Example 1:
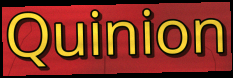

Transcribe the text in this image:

Quinion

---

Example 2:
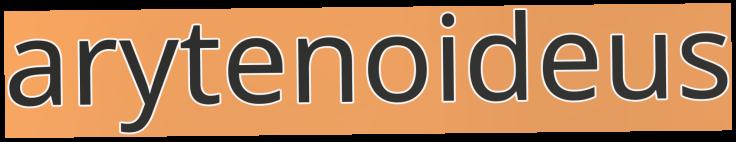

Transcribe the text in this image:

arytenoideus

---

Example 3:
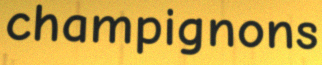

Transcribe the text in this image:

champignons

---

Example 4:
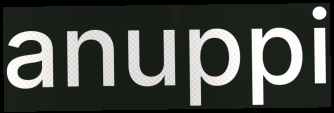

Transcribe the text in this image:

anuppi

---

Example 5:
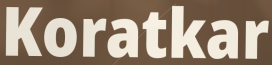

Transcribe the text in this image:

Koratkar